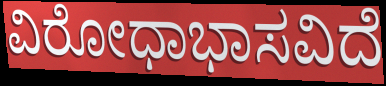
ವಿರೋಧಾಭಾಸವಿದೆ